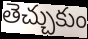
తెచ్చుకుం